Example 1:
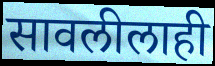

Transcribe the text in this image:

सावलीलाही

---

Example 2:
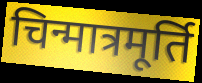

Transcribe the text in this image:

चिन्मात्रमूर्ति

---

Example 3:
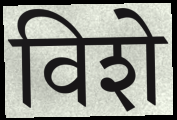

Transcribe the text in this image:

विशे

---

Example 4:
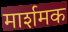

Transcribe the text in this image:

मार्शमक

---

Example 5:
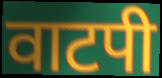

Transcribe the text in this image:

वाटपी